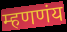
म्हणणंय